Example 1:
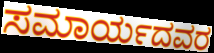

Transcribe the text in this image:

ಸಮಾರ್ಯದವರ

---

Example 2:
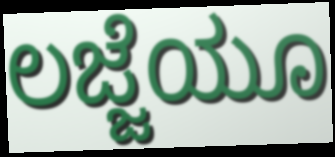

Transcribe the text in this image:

ಲಜ್ಜೆಯೂ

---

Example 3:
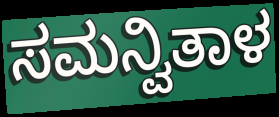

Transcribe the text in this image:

ಸಮನ್ವಿತಾಳ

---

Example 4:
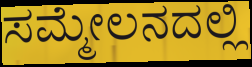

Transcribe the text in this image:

ಸಮ್ಮೇಲನದಲ್ಲಿ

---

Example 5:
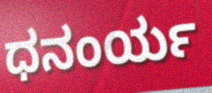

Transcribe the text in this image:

ಧನಂರ್ಯ